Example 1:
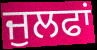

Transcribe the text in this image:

ਜੁਲਫਾਂ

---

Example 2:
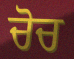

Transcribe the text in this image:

ਚੋਚ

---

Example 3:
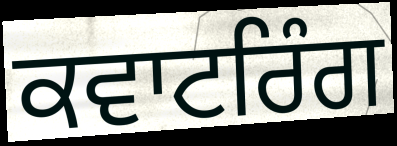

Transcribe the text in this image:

ਕਵਾਟਰਿੰਗ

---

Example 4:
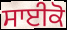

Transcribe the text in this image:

ਸਾਈਕੋ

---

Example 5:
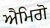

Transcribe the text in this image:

ਐਮਿਗੋ